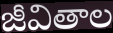
జీవితాల